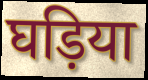
घड़िया